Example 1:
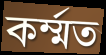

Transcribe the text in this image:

কৰ্ম্মত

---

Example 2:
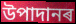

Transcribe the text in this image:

উপাদানৰ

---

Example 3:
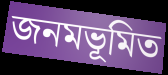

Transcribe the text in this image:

জনমভূমিত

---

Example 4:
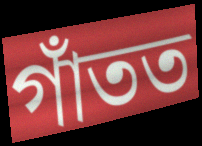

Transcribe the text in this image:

গাঁতত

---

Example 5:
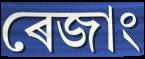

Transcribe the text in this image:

ৰেজাং